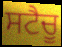
ਸਟੈਚੂ